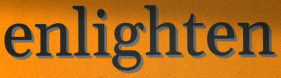
enlighten